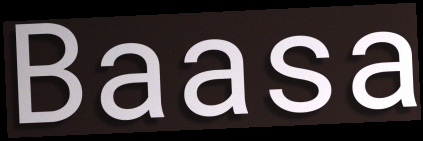
Baasa